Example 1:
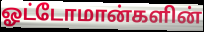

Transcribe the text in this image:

ஓட்டோமான்களின்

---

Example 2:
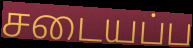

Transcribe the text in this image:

சடையப்ப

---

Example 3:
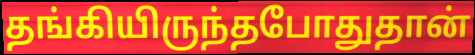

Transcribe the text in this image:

தங்கியிருந்தபோதுதான்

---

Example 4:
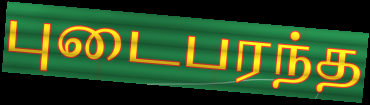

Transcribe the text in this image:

புடைபரந்த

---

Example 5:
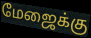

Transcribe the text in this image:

மேஜைக்கு